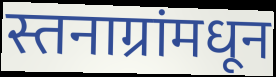
स्तनाग्रांमधून